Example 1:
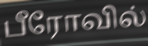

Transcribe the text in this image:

பீரோவில்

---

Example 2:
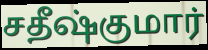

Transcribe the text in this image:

சதீஷ்குமார்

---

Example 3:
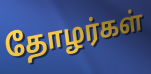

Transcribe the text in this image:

தோழர்கள்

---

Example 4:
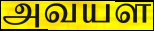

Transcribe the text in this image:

அவயள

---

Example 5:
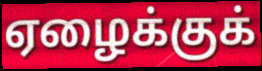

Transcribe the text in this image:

ஏழைக்குக்